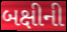
બક્ષીની